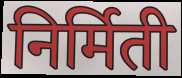
निर्मिती